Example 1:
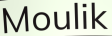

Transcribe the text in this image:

Moulik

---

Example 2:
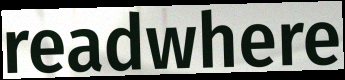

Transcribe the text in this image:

readwhere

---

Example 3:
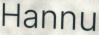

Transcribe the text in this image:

Hannu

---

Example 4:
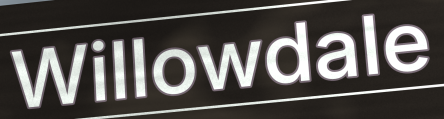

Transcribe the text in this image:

Willowdale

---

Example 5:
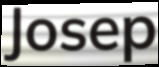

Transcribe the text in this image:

Josep